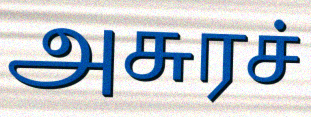
அசுரச்